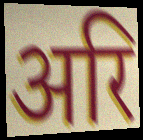
अरि